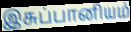
இசுப்பானியம்